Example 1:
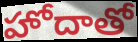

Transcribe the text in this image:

హోదాతో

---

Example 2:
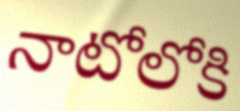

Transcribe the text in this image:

నాటోలోకి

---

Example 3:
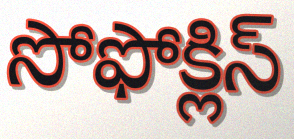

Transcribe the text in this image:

సోఫోక్లిస్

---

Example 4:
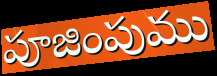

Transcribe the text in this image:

పూజింపుము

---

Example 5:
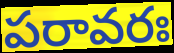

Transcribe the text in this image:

పరావరః